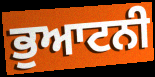
ਭੁਆਟਨੀ